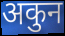
अकुन